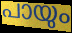
പായും